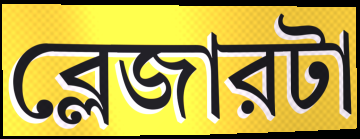
ব্লেজারটা